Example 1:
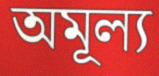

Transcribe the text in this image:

অমূল্য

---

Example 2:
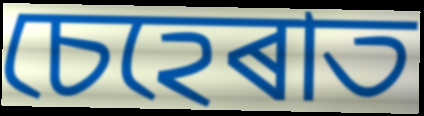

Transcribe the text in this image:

চেহেৰাত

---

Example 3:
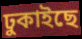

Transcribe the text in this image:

ঢুকাইছে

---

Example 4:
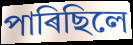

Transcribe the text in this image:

পাৰিছিলে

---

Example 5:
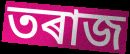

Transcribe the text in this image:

তৰাজ